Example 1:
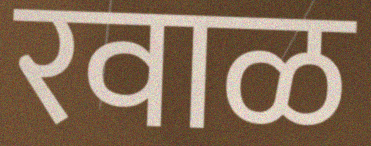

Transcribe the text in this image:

रवाळ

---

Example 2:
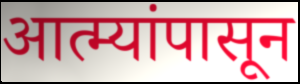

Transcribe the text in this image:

आत्म्यांपासून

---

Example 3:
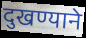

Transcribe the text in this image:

दुखण्याने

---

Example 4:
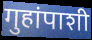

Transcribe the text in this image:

गुहांपाशी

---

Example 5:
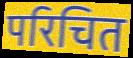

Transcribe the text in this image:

परिचित